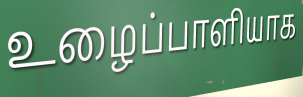
உழைப்பாளியாக